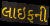
લાઇફની